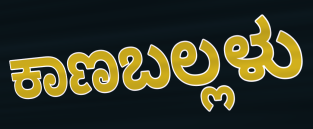
ಕಾಣಬಲ್ಲಳು